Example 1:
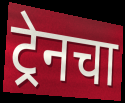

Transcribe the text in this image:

ट्रेनचा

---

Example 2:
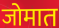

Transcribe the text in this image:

जोमात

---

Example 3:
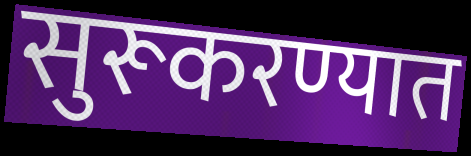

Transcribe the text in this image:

सुरूकरण्यात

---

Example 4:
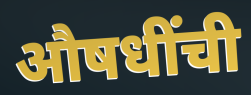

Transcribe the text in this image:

औषधींची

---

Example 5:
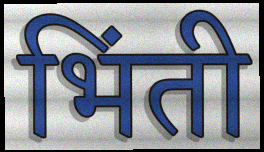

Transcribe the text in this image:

भिंती